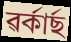
ৱৰ্কাৰ্ছ